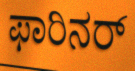
ಫಾರಿನರ್